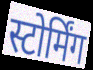
स्टोर्मिंग